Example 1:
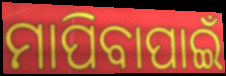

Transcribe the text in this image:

ମାପିବାପାଇଁ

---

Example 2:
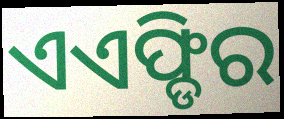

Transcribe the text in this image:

ଏଏଫ୍ଡିର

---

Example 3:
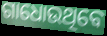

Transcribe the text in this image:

ଗାଧୋଉଥିବେ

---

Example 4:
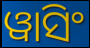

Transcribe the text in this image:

ୱାସିଂ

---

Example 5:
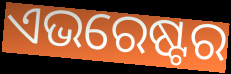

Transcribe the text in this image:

ଏଭରେଷ୍ଟର